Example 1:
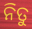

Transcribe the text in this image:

ନିତୁ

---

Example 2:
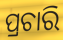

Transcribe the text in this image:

ପ୍ରଚାରି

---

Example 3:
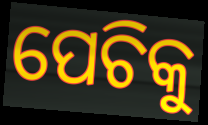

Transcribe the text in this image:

ପେଚିକୁ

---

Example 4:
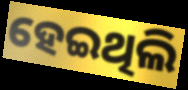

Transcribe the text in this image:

ହେଇଥିଲି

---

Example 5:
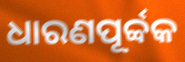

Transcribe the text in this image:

ଧାରଣପୂର୍ବ୍ବକ